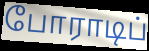
போராடிப்